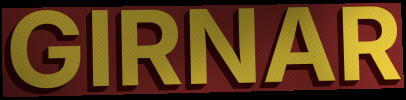
GIRNAR